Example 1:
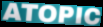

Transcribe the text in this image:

ATOPIC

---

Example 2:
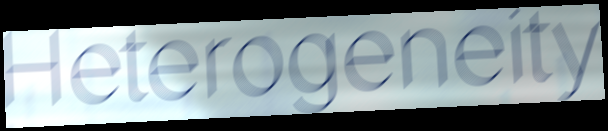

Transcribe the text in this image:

Heterogeneity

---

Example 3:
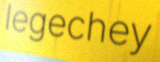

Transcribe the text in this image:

legechey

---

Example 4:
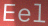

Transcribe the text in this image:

Eel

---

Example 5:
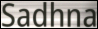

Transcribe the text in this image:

Sadhna